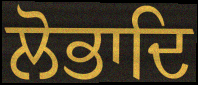
ਲੋਭਾਦਿ